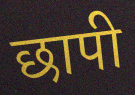
छापी